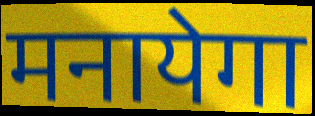
मनायेगा